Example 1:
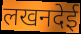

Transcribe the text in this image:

लखनदेई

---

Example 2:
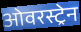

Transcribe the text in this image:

ओवरस्ट्रेन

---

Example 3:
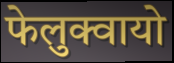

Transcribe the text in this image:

फेलुक्वायो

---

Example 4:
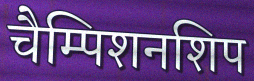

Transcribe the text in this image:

चैम्पिशनशिप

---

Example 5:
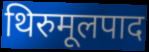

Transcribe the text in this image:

थिरुमूलपाद